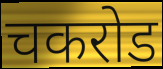
चकरोड